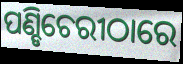
ପଣ୍ଡିଚେରୀଠାରେ